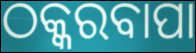
ଠକ୍କରବାପା